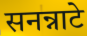
सनन्नाटे